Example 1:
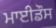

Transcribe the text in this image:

ਮਾਈਡੌਸ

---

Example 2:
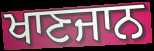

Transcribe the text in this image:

ਖਾਣਜਾਨ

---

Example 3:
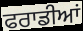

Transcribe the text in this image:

ਫਰਾਡੀਆਂ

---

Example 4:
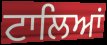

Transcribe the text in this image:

ਟਾਲਿਆਂ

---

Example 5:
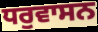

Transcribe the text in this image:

ਧਰੁਵਾਸਨ